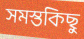
সমস্তকিছু